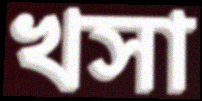
খসা